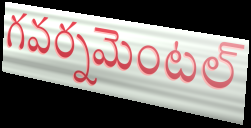
గవర్నమెంటల్